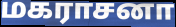
மகராசனா